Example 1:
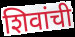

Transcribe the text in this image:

शिवांची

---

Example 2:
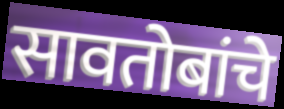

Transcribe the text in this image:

सावतोबांचे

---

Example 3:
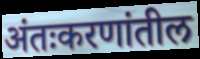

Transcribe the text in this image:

अंतःकरणांतील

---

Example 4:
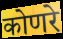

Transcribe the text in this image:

कोणरे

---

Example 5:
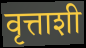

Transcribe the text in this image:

वृत्ताशी